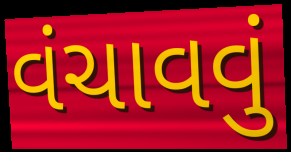
વંચાવવું